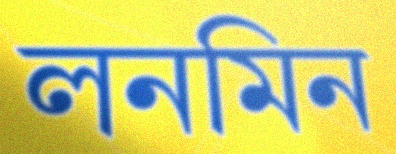
লনমিন